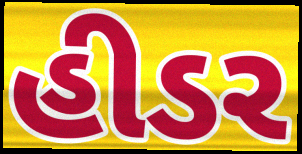
હીડર